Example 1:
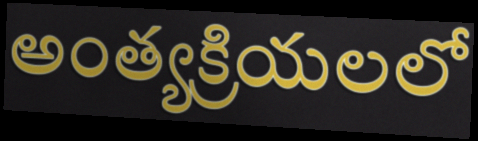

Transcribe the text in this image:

అంత్యక్రియలలో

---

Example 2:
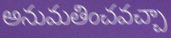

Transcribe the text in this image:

అనుమతించవచ్చా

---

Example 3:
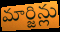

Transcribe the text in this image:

మార్జిన్లు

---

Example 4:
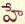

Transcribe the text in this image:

హే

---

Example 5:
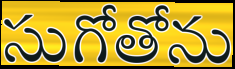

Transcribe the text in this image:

సుగోతోను